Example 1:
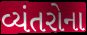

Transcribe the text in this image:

વ્યંતરોના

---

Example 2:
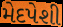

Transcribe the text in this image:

મેદપેશી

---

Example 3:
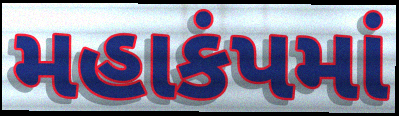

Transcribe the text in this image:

મહાકંપમાં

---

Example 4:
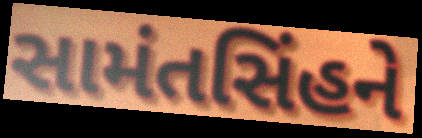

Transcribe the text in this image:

સામંતસિંહને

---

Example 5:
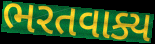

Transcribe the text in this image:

ભરતવાક્ય